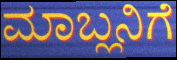
ಮಾಬ್ಲನಿಗೆ